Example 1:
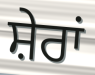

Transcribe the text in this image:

ਸ਼ੇਰਾਂ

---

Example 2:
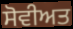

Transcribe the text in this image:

ਸੋਵੀਅਤ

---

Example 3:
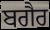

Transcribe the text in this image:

ਬਗੈਰ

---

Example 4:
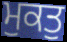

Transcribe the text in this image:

ਮੁਕਤੁ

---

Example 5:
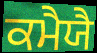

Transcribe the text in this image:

ਕਮੈਯੈ